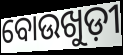
ବୋଉଖୁଡ଼ୀ